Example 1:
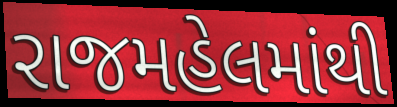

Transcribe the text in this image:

રાજમહેલમાંથી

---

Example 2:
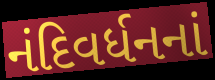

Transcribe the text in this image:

નંદિવર્ધનનાં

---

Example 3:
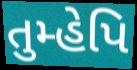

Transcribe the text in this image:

તુમ્હેપિ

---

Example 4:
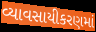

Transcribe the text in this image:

વ્યાવસાયીકરણમાં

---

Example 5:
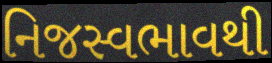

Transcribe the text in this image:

નિજસ્વભાવથી